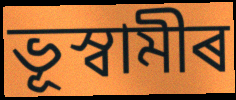
ভূস্বামীৰ